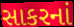
સાકરનાં